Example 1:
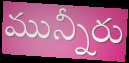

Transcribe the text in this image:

మున్నీరు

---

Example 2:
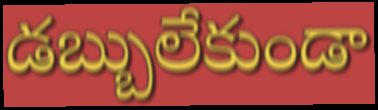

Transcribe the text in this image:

డబ్బులేకుండా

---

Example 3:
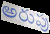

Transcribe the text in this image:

అరుపు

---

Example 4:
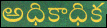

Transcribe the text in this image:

అధికాధిక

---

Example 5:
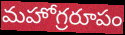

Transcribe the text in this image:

మహోగ్రరూపం